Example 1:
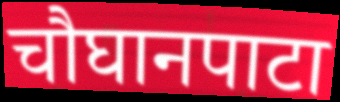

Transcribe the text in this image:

चौघानपाटा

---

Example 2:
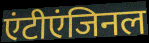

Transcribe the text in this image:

एंटीएंजिनल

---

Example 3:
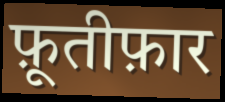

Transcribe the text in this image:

फ़ूतीफ़ार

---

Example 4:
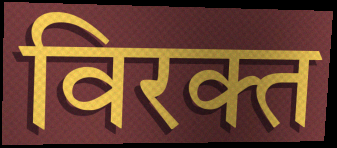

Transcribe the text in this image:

विरक्त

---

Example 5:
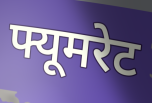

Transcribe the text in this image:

फ्यूमरेट